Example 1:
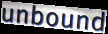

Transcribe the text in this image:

unbound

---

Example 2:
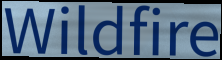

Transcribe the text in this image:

Wildfire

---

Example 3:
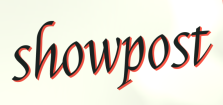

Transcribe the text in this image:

showpost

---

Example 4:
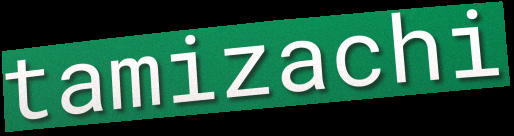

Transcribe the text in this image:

tamizachi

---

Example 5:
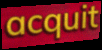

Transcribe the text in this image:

acquit